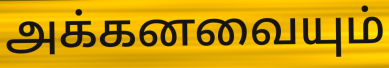
அக்கனவையும்